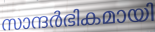
സാന്ദർഭികമായി